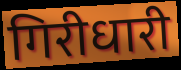
गिरीधारी